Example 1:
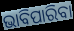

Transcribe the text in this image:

ଭାବିପାରିବା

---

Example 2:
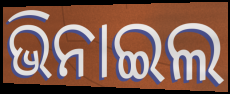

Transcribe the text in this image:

ଭିନାଇଲ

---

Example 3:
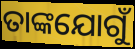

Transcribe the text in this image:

ତାଙ୍କଯୋଗୁଁ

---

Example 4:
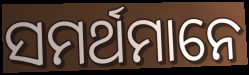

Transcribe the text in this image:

ସମର୍ଥମାନେ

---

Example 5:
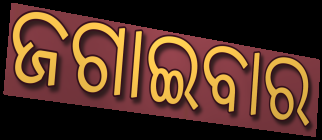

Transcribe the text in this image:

ଜଗାଇବାର